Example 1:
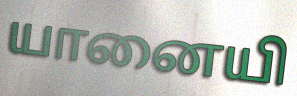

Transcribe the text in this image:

யானையி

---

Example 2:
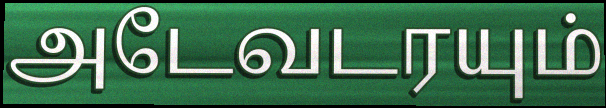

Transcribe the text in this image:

அடேவடரயும்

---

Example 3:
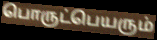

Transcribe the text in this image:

பொருட்பெயரும்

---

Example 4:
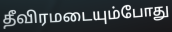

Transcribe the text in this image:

தீவிரமடையும்போது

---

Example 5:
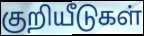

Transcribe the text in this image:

குறியீடுகள்